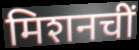
मिशनचीं